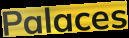
Palaces